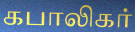
கபாலிகர்